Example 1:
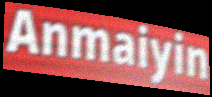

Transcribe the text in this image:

Anmaiyin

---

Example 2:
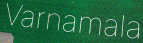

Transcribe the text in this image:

Varnamala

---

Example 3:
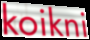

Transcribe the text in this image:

koikni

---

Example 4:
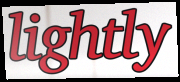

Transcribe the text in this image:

lightly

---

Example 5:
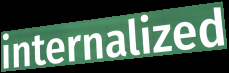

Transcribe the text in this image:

internalized